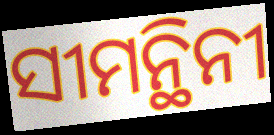
ସୀମନ୍ଥିନୀ